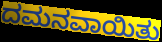
ದಮನವಾಯಿತು